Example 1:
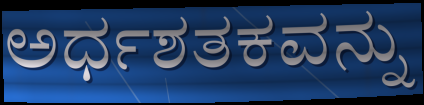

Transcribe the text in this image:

ಅರ್ಧಶತಕವನ್ನು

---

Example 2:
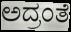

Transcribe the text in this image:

ಅದ್ರಂತೆ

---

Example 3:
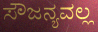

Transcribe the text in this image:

ಸೌಜನ್ಯವಲ್ಲ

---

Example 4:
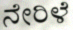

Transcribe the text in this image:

ನೇರಿಳೆ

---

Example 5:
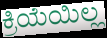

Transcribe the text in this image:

ಕ್ರಿಯೆಯಿಲ್ಲ